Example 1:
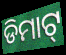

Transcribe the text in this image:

ଡିମାଟ୍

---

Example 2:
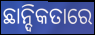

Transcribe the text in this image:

ଛାନ୍ଦିକତାରେ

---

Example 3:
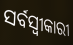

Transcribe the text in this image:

ସର୍ବସ୍ଵୀକାରୀ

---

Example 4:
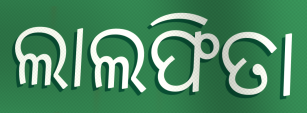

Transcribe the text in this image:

ଲାଲଫିତା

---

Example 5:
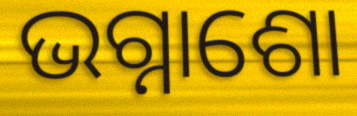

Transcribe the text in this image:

ଭଗ୍ନାଶୋ